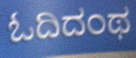
ಓದಿದಂಥ